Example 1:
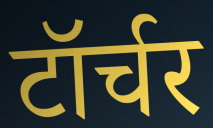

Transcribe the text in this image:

टॉर्चर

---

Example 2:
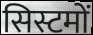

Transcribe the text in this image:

सिस्टमों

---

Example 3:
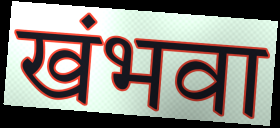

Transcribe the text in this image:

खंभवा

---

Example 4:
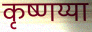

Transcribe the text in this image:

कृष्णय्या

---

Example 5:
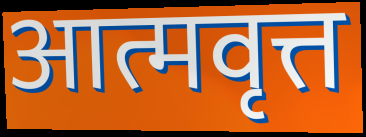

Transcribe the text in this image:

आत्मवृत्त